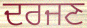
ਦਰਜਣ